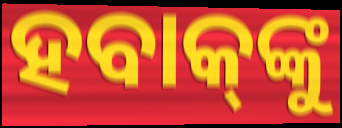
ହବାକ୍‌ଙ୍କୁ